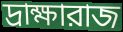
দ্রাক্ষারাজ